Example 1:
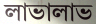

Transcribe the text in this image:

লাভালাভ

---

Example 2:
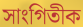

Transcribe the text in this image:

সাংগিতীক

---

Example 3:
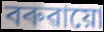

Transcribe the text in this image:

বৰুৱায়ো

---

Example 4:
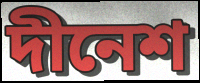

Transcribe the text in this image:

দীনেশ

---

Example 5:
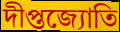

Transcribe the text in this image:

দীপ্তজ্যোতি